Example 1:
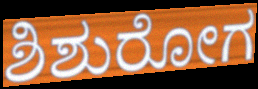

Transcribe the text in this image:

ಶಿಶುರೋಗ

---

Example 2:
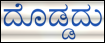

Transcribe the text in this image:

ದೊಡ್ಡದು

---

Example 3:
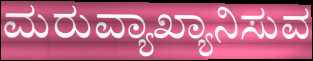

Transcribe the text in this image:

ಮರುವ್ಯಾಖ್ಯಾನಿಸುವ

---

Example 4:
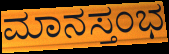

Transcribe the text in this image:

ಮಾನಸ್ತಂಭ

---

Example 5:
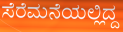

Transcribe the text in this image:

ಸೆರೆಮನೆಯಲ್ಲಿದ್ದ